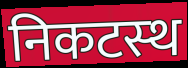
निकटस्‍थ